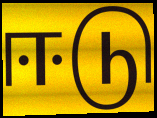
ஈடு